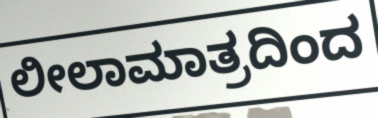
ಲೀಲಾಮಾತ್ರದಿಂದ